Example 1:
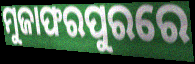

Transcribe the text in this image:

ମୁଜାଫରପୁରରେ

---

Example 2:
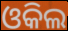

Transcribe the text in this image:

ଓକିଲ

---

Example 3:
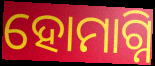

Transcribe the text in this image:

ହୋମାଗ୍ନି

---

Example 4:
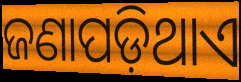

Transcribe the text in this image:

ଜଣାପଡ଼ିଥାଏ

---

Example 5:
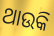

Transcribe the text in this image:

ଥାଉକି